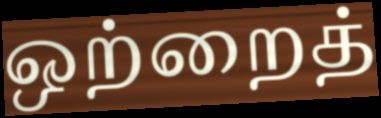
ஒற்றைத்